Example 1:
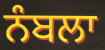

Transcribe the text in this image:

ਨੰਬਲਾ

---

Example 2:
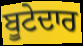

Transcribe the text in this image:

ਬੂਟੇਦਾਰ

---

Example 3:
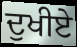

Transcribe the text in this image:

ਦੁਖੀਏ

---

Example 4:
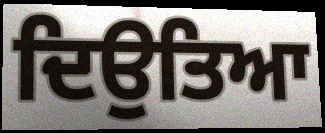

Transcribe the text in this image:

ਦਿਉਤਿਆ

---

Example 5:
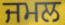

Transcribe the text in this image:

ਜਮਲ